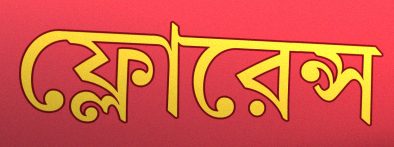
ফ্লোরেন্স